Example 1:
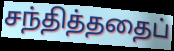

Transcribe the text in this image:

சந்தித்ததைப்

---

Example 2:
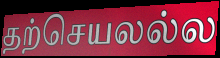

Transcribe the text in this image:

தற்செயலல்ல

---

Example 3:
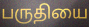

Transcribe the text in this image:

பருதியை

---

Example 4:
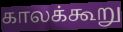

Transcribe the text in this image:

காலக்கூறு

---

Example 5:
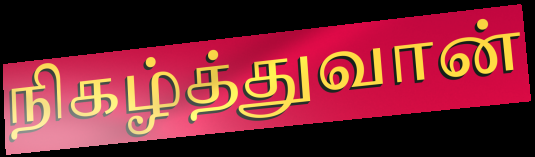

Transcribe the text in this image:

நிகழ்த்துவான்